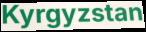
Kyrgyzstan